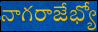
నాగరాజేభ్యో